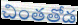
చింతతోడ